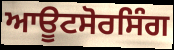
ਆਊਟਸੋਰਸਿੰਗ